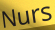
Nurs